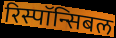
रिस्पॉन्सिबल